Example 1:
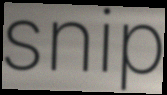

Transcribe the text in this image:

snip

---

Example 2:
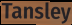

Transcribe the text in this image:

Tansley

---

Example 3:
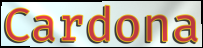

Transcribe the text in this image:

Cardona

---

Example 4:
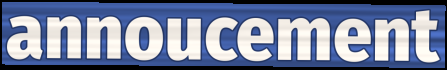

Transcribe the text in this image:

annoucement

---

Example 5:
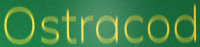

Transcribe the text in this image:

Ostracod